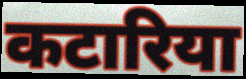
कटारिया